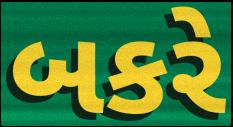
બકરે